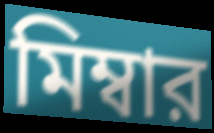
মিম্বার